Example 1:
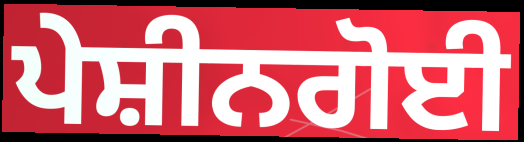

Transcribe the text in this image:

ਪੇਸ਼ੀਨਗੋਈ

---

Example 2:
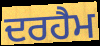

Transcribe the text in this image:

ਦਰਹੈਮ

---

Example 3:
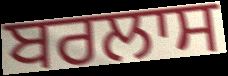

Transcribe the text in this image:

ਬਰਲਾਸ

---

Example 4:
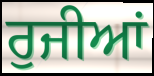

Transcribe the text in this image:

ਰੁਜੀਆਂ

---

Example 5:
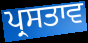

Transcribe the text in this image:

ਪ੍ਰਸਤਾਵ